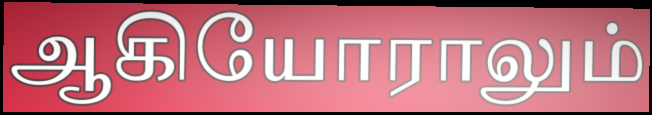
ஆகியோராலும்